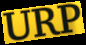
URP